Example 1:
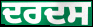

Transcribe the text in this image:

ਦਰਦਸ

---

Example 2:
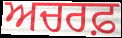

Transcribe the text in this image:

ਅਚਰਫ਼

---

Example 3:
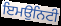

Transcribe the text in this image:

ਇਮਉਨਿਟੀ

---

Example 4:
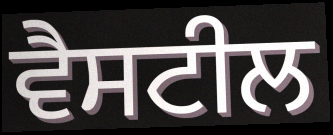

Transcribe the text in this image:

ਵੈਸਟੀਲ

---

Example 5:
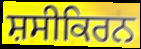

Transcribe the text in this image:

ਸ਼ਸੀਕਿਰਨ